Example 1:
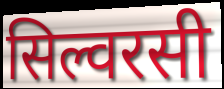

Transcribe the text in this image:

सिल्वरसी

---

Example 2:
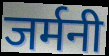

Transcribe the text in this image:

जर्मनी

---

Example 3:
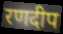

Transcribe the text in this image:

रणदीप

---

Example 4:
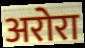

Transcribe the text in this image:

अरोरा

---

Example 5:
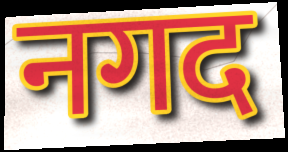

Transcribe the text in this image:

नगद